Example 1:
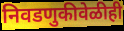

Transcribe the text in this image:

निवडणुकीवेळीही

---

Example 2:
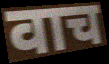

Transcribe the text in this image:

वाच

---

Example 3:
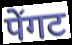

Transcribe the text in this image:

पेंगट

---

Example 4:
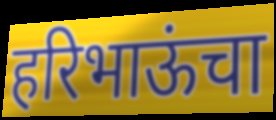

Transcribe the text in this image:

हरिभाऊंचा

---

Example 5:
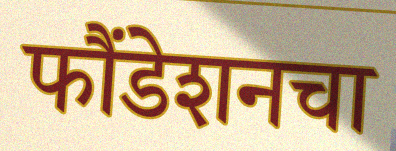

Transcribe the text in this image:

फौंडेशनचा